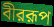
বীররূপ